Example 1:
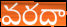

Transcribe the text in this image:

వరదా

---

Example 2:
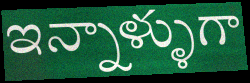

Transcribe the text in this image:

ఇన్నాళ్ళుగా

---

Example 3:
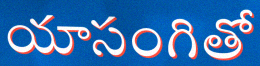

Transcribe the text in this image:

యాసంగితో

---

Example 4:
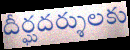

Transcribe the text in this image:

దీర్ఘదర్శులకు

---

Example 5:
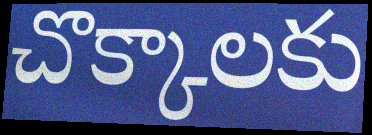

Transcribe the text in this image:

చొక్కాలకు